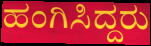
ಹಂಗಿಸಿದ್ದರು